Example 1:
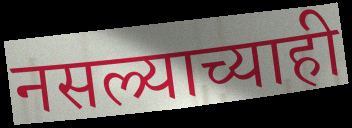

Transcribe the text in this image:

नसल्याच्याही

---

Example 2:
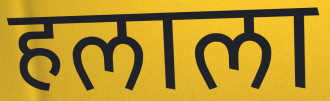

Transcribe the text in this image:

हलाला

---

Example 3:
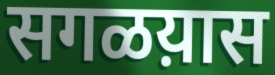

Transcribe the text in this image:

सगळय़ास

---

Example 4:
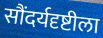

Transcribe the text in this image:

सौंदर्यदृष्टीला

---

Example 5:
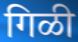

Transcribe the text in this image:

गिळी